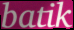
batik